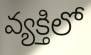
వ్యక్తిలో